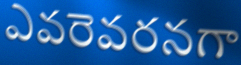
ఎవరెవరనగా